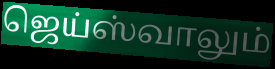
ஜெய்ஸ்வாலும்